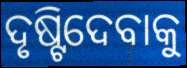
ଦୃଷ୍ଟିଦେବାକୁ